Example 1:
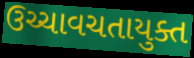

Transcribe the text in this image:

ઉચ્ચાવચતાયુક્ત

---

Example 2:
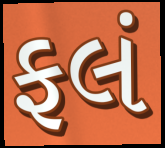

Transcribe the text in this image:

ફલં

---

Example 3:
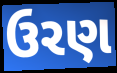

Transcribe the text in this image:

ઉરણ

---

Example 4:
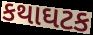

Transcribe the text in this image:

કથાઘટક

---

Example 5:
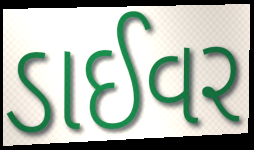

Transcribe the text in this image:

ડાઈવર